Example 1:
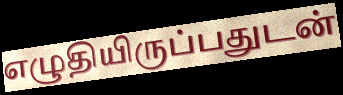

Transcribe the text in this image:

எழுதியிருப்பதுடன்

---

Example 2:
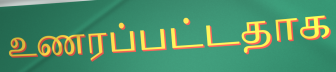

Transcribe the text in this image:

உணரப்பட்டதாக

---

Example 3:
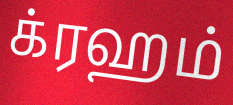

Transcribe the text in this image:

க்ரஹம்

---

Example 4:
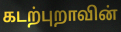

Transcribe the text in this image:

கடற்புறாவின்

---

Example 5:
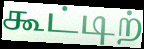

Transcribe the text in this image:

கூட்டிற்